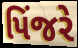
પિંજરે